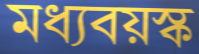
মধ্যবয়স্ক